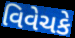
વિવેચકે